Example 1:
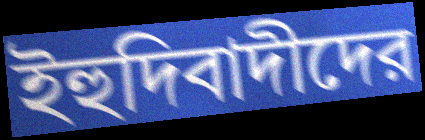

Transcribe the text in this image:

ইহুদিবাদীদের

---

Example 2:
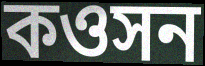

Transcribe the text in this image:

কওসন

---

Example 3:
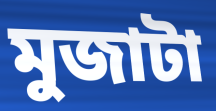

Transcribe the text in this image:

মুজাটা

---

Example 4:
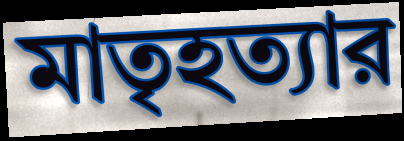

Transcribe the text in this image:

মাতৃহত্যার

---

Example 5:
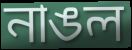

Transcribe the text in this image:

নাঙল